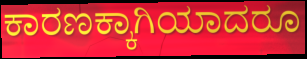
ಕಾರಣಕ್ಕಾಗಿಯಾದರೂ